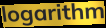
logarithm